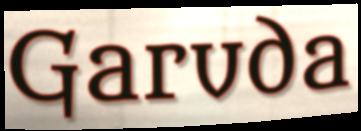
Garuda